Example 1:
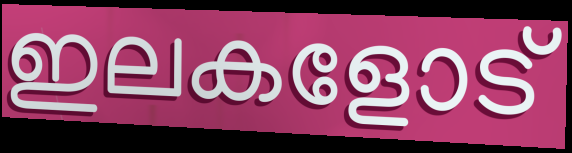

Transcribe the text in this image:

ഇലകളോട്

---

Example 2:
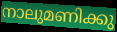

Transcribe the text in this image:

നാലുമണിക്കു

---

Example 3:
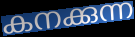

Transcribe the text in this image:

കനക്കുന്ന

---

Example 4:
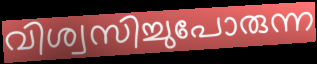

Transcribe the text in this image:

വിശ്വസിച്ചുപോരുന്ന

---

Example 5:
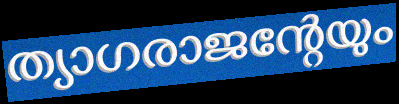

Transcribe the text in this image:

ത്യാഗരാജന്റേയും